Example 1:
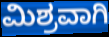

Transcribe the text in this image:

ಮಿಶ್ರವಾಗಿ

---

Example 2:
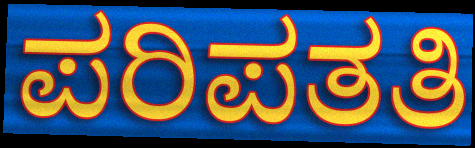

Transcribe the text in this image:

ಪರಿಪತತಿ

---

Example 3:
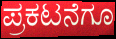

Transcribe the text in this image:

ಪ್ರಕಟನೆಗೂ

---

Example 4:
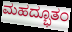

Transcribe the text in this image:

ಮಹದ್ಭೂತಂ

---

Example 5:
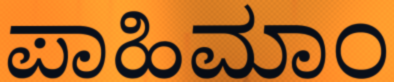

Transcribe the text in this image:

ಪಾಹಿಮಾಂ